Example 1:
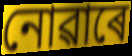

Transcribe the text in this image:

নোৱাৰে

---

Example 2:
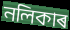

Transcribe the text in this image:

নলিকাৰ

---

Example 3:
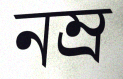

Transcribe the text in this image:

নম্ৰ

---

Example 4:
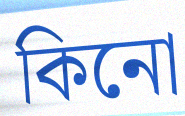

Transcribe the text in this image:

কিনো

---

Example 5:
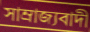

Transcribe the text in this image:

সাম্ৰাজ্যবাদী